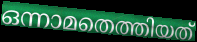
ഒന്നാമതെത്തിയത്